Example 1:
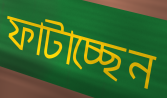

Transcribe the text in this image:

ফাটাচ্ছেন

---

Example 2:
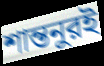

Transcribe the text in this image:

শান্তনুরই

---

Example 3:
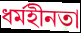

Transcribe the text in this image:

ধর্মহীনতা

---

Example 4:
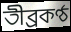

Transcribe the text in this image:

তীব্রকণ্ঠ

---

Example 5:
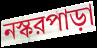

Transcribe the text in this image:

নস্করপাড়া